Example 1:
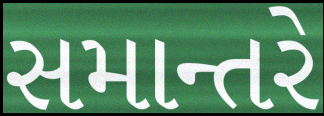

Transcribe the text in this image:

સમાન્તરે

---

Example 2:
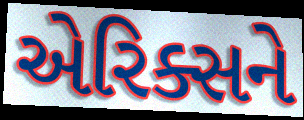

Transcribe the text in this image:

એરિક્સને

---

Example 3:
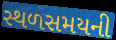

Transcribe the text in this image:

સ્થળસમયની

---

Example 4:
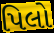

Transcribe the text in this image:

પિલો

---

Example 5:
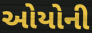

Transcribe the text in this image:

ઓયોની